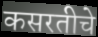
कसरतीचे